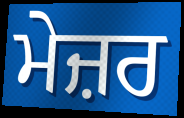
ਮੇਜ਼ਰ